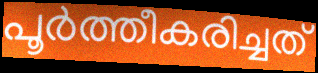
പൂർത്തീകരിച്ചത്